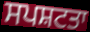
ਸਪਸ਼ਟਤਾ